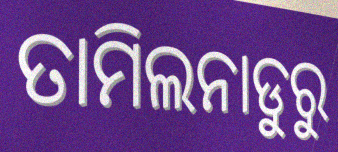
ତାମିଲନାଡୁରୁ